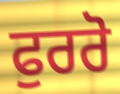
ਫੁਰਰੋ